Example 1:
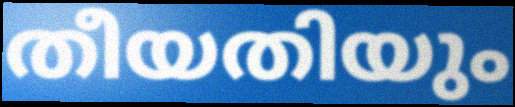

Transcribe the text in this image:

തീയതിയും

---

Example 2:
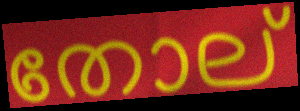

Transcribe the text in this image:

തോല്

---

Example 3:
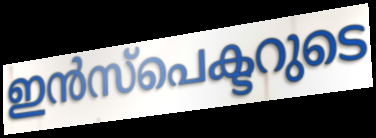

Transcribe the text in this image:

ഇൻസ്പെക്ടറുടെ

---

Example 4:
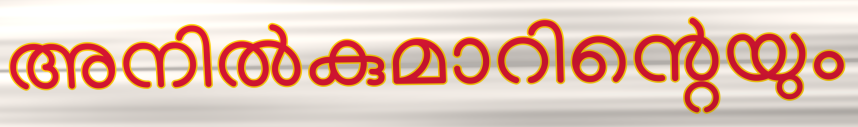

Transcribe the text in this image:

അനിൽകുമാറിന്റെയും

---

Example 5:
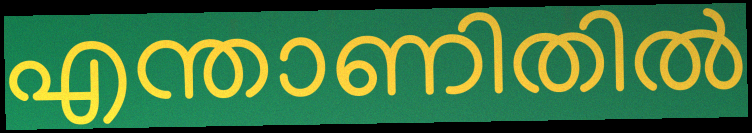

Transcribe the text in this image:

എന്താണിതിൽ